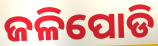
ଜଳିପୋଡି